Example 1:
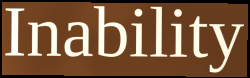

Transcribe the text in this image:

Inability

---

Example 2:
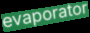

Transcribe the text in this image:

evaporator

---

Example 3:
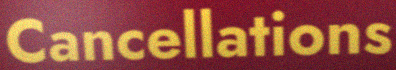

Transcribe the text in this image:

Cancellations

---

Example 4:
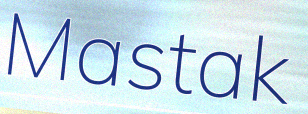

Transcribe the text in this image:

Mastak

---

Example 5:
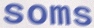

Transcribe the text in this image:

soms